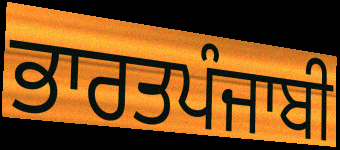
ਭਾਰਤਪੰਜਾਬੀ